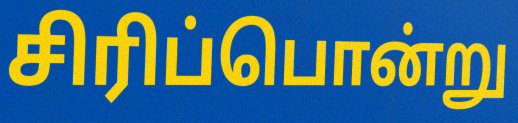
சிரிப்பொன்று